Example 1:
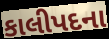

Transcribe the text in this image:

કાલીપદના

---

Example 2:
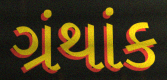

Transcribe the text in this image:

ગ્રંથાંક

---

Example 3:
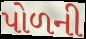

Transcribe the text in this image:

પોળની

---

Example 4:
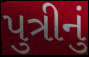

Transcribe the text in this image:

પુત્રીનું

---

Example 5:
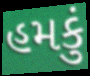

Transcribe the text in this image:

હમકું